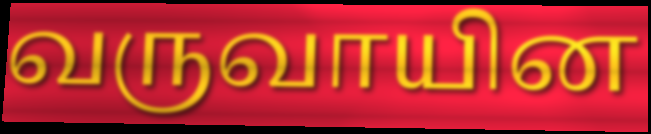
வருவாயின